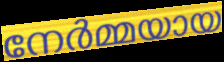
നേർമ്മയായ